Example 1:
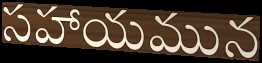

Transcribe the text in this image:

సహాయమున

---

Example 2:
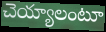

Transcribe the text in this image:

చెయ్యాలంటూ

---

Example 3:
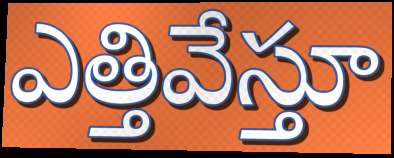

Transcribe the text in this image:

ఎత్తివేస్తూ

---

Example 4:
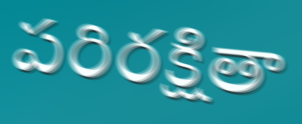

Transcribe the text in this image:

పరిరక్షితా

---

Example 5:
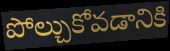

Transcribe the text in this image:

పోల్చుకోవడానికి